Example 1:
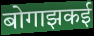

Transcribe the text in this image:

बोगाझकई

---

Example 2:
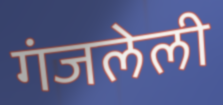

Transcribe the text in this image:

गंजलेली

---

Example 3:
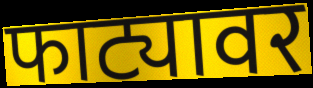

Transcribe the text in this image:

फाट्यावर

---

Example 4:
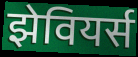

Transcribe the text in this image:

झेवियर्स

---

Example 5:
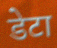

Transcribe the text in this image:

डेटा